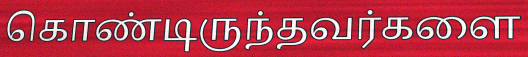
கொண்டிருந்தவர்களை